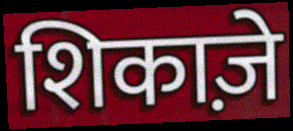
शिकाज़े